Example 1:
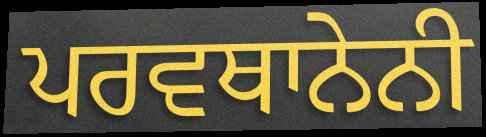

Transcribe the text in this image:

ਪਰਵਥਾਨੇਨੀ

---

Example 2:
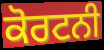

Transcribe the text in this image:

ਕੋਰਟਨੀ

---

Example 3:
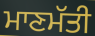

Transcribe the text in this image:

ਮਾਣਮੱਤੀ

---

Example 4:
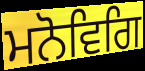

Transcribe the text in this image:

ਮਨੋਵਿਗਿ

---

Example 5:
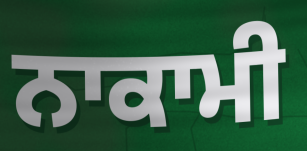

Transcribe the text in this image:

ਨਾਕਾਮੀ